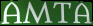
AMTA